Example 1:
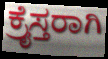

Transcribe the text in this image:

ಕ್ರೈಸ್ತರಾಗಿ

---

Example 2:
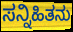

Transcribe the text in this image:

ಸನ್ನಿಹಿತನು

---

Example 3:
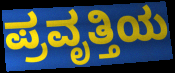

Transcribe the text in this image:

ಪ್ರವೃತ್ತಿಯ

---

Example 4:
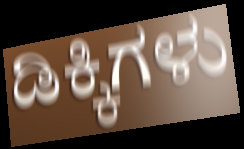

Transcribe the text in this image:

ಡಿಕ್ಕಿಗಳು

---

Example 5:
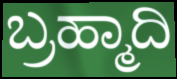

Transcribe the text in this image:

ಬ್ರಹ್ಮಾದಿ